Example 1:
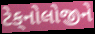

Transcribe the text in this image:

ટેક્‌નોલોજીને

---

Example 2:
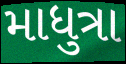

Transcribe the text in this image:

માધુત્રા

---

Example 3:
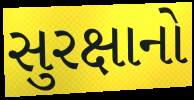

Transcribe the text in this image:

સુરક્ષાનો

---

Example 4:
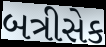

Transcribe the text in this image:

બત્રીસેક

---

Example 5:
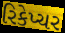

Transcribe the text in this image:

રિકેપ્ચર